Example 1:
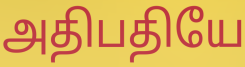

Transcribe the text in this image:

அதிபதியே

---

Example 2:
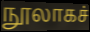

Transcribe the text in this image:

நூலாகச்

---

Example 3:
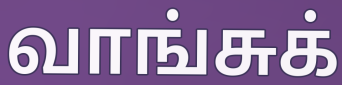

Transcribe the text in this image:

வாங்சுக்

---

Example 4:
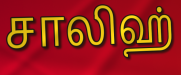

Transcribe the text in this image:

சாலிஹ்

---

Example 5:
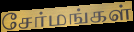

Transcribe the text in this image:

சேர்மங்கள்